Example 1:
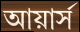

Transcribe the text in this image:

আয়ার্স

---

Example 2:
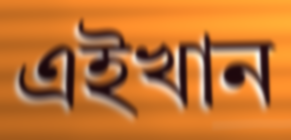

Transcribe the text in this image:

এইখান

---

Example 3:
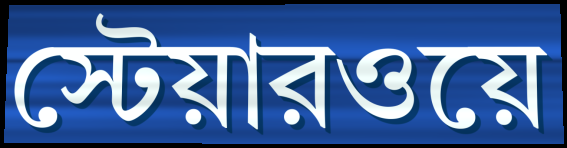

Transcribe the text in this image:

স্টেয়ারওয়ে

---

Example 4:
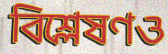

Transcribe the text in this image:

বিশ্লেষণও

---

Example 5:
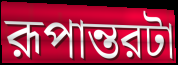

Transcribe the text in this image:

রূপান্তরটা